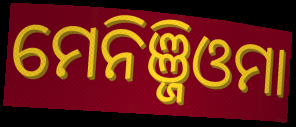
ମେନିଞ୍ଜିଓମା